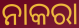
ନାକରା